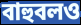
বাহুবলও